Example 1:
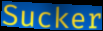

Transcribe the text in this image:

Sucker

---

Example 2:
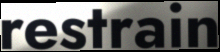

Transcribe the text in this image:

restrain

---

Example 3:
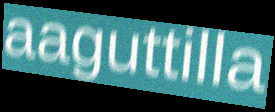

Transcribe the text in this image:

aaguttilla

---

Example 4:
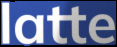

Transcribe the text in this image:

latte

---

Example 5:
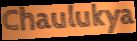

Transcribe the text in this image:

Chaulukya